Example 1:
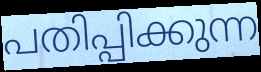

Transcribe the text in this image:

പതിപ്പിക്കുന്ന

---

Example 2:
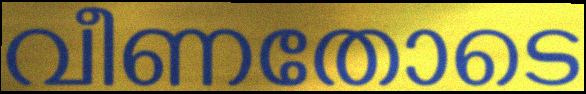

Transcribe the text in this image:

വീണതോടെ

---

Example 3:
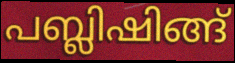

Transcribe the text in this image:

പബ്ലിഷിങ്ങ്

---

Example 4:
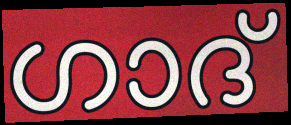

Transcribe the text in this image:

ഗാദ്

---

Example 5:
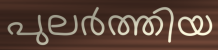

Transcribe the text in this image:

പുലർത്തിയ